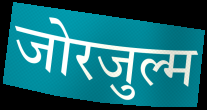
जोरजुल्म